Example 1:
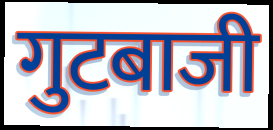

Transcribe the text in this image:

गुटबाजी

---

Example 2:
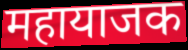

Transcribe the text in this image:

महायाजक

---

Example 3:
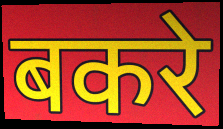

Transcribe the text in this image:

बकरे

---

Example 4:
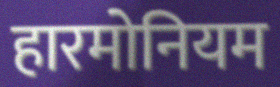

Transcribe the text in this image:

हारमोनियम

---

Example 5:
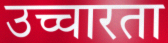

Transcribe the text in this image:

उच्चारता